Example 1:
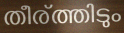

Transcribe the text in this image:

തീര്ത്തിടും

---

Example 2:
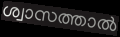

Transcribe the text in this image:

ശ്വാസത്താൽ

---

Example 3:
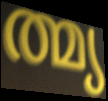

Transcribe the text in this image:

ത്മ്യ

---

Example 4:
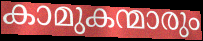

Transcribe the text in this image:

കാമുകന്മാരും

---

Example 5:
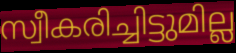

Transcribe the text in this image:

സ്വീകരിച്ചിട്ടുമില്ല